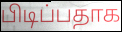
பிடிப்பதாக